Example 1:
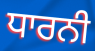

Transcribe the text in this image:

ਧਾਰਨੀ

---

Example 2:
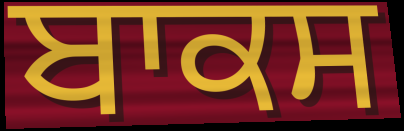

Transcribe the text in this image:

ਬਾਕਸ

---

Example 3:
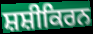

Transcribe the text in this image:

ਸ਼ਸ਼ੀਕਿਰਨ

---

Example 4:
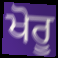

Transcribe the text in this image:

ਖੋਰੂ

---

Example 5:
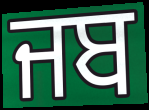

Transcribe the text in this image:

ਜਬ